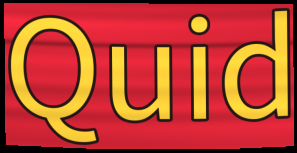
Quid